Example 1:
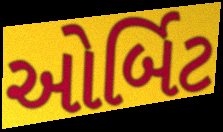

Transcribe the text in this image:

ઓર્બિટ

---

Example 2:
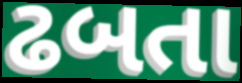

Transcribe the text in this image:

ઢબતા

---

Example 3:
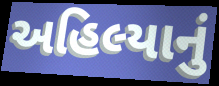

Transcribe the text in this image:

અહિલ્યાનું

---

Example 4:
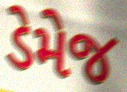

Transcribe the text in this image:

ડેમેજ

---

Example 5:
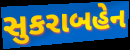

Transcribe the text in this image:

સુકરાબહેન